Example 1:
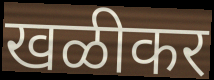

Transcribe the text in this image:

खळीकर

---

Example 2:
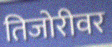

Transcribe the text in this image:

तिजोरीवर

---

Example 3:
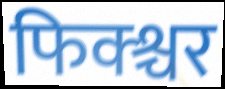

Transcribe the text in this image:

फिक्श्चर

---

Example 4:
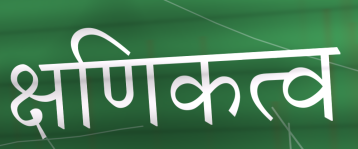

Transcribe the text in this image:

क्षणिकत्व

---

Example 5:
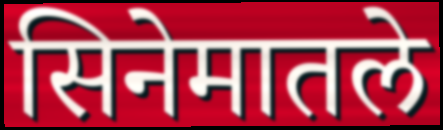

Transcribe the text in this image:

सिनेमातले